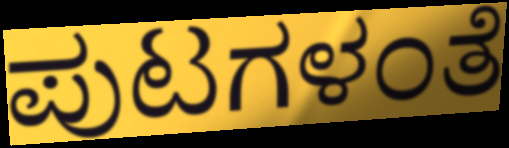
ಪುಟಗಳಂತೆ